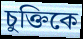
চুক্তিকে